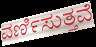
ವರ್ಣಿಸುತ್ತವೆ